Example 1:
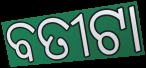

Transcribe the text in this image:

ବତୀଟା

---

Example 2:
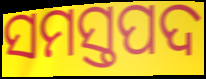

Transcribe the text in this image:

ସମସ୍ତପଦ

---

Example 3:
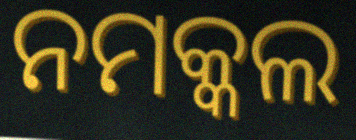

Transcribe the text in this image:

ନମକ୍କଲ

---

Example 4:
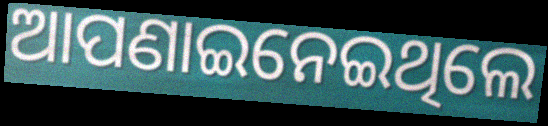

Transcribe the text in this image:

ଆପଣାଇନେଇଥିଲେ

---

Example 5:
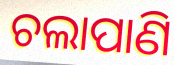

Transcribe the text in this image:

ଚଲାପାଣି